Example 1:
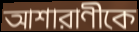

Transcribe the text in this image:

আশারাণীকে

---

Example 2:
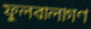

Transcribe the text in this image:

ফুলবালাগণ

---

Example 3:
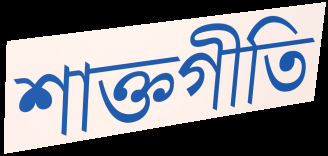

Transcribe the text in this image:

শাক্তগীতি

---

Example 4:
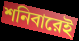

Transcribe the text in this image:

শনিবারেই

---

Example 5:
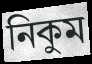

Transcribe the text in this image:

নিকুম